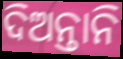
ଦିଅନ୍ତାନି